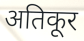
अतिकूर